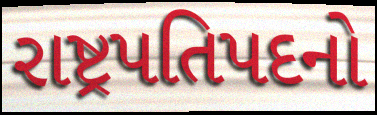
રાષ્ટ્રપતિપદનો